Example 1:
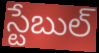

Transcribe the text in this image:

స్టేబుల్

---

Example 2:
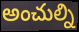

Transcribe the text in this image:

అంచుల్ని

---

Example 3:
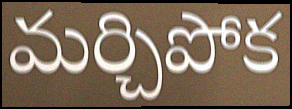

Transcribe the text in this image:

మర్చిపోక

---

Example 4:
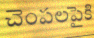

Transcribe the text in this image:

చెంపలపైకి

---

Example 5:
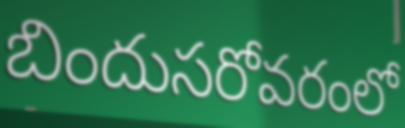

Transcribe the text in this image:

బిందుసరోవరంలో